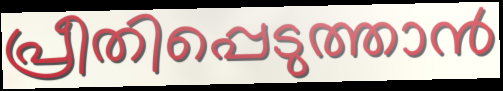
പ്രീതിപ്പെടുത്താൻ